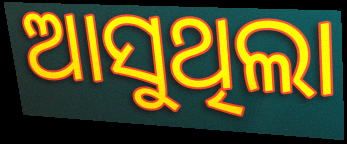
ଆସୁଥିଲା